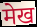
मेख